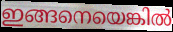
ഇങ്ങനെയെങ്കിൽ